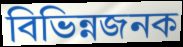
বিভিন্নজনক